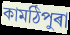
কামঠিপুৰা